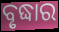
ବୃଦ୍ଧାର